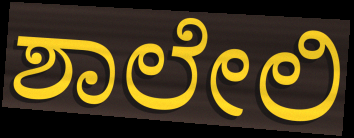
ಶಾಲೇಲಿ